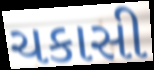
ચકાસી